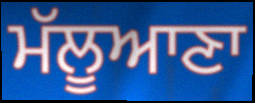
ਮੱਲੂਆਣਾ